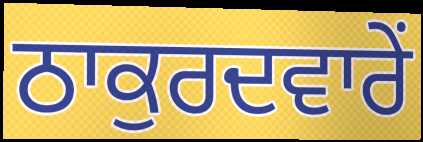
ਠਾਕੁਰਦਵਾਰੇਂ